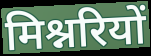
मिश्नरियों